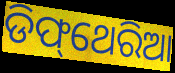
ଡିଫ୍‌ଥେରିଆ